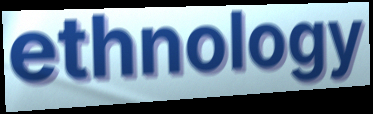
ethnology